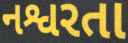
નશ્વરતા